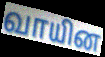
வாயின